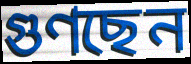
গুণছেন